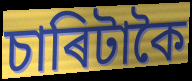
চাৰিটাকৈ